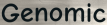
Genomic